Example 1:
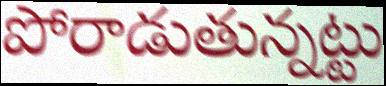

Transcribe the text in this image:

పోరాడుతున్నట్టు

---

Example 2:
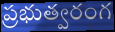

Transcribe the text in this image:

ప్రభుత్వరంగ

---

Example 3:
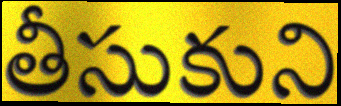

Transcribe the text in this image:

తీసుకుని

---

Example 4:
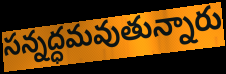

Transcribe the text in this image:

సన్నద్ధమవుతున్నారు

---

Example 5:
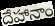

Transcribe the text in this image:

దేహానాం